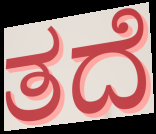
ತದೆ